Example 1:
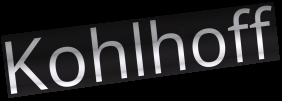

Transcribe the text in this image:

Kohlhoff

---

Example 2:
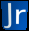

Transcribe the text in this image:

Jr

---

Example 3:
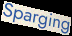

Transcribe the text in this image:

Sparging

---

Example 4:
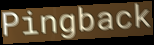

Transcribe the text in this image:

Pingback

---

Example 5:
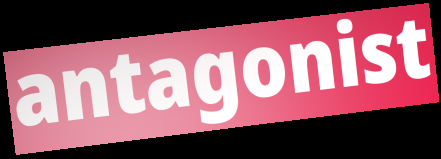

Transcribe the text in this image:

antagonist